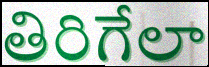
తిరిగేలా